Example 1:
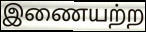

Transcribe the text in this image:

இணையற்ற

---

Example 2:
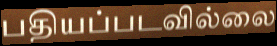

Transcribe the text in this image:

பதியப்படவில்லை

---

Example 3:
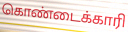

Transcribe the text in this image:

கொண்டைக்காரி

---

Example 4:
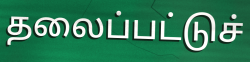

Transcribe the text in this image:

தலைப்பட்டுச்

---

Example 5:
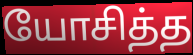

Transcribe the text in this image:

யோசித்த